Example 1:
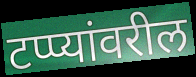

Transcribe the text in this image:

टप्प्यांवरील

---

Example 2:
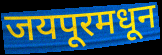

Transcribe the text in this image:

जयपूरमधून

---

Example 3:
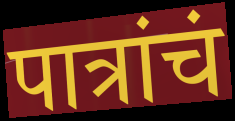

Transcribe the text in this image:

पात्रांचं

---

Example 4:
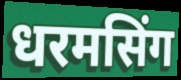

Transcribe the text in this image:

धरमसिंग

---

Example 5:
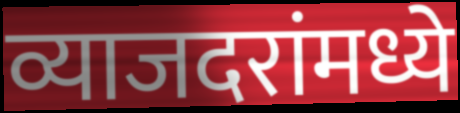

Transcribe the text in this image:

व्याजदरांमध्ये